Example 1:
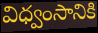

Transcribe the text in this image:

విధ్వంసానికి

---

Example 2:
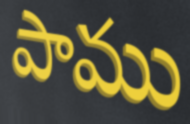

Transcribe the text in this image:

పాము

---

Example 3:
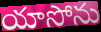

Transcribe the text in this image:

యాసోను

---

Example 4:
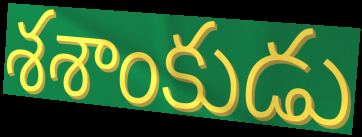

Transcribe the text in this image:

శశాంకుడు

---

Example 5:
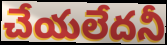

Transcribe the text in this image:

చేయలేదనీ